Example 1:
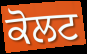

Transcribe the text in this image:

ਕੋਲਟ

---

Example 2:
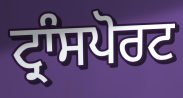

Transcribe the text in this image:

ਟ੍ਰਾੰਸਪੋਰਟ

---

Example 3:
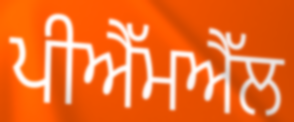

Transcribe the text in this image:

ਪੀਐੱਮਐੱਲ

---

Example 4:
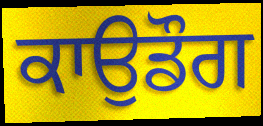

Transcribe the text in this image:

ਕਾਉਡੌਗ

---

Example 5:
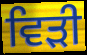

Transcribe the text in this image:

ਵਿੜੀ